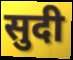
सुदी